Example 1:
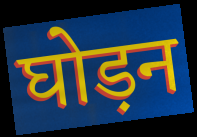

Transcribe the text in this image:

घोड़न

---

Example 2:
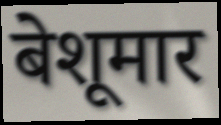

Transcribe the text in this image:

बेशूमार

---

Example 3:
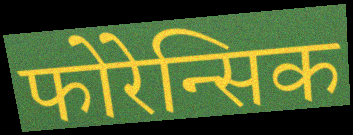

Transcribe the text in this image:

फोरेन्सिक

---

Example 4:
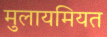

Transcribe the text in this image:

मुलायमियत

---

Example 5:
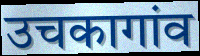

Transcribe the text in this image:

उचकागांव